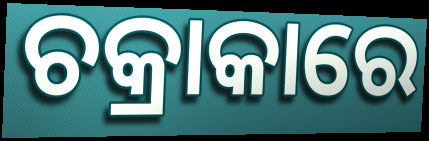
ଚକ୍ରାକାରେ